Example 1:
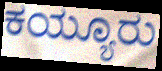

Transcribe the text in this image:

ಕಯ್ಯೂರು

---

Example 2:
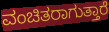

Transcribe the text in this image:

ವಂಚಿತರಾಗುತ್ತಾರೆ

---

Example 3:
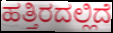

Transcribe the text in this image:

ಹತ್ತಿರದಲ್ಲಿದೆ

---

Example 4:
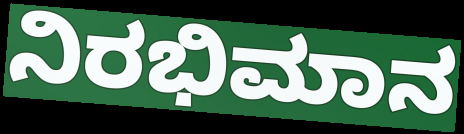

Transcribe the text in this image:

ನಿರಭಿಮಾನ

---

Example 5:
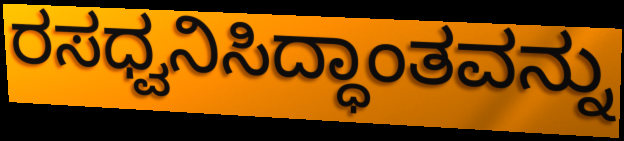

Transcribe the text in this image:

ರಸಧ್ವನಿಸಿದ್ಧಾಂತವನ್ನು